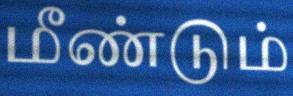
மீண்டும்